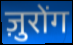
ज़ुरोंग